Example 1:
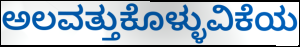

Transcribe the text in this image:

ಅಲವತ್ತುಕೊಳ್ಳುವಿಕೆಯ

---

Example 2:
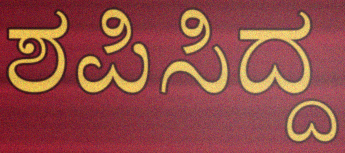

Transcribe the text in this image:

ಶಪಿಸಿದ್ದ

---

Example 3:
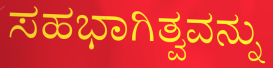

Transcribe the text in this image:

ಸಹಭಾಗಿತ್ವವನ್ನು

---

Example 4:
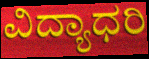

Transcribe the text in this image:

ವಿದ್ಯಾಧರಿ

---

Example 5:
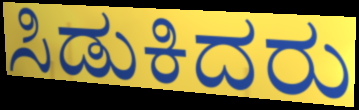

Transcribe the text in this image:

ಸಿಡುಕಿದರು